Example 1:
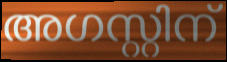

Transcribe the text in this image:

അഗസ്റ്റിന്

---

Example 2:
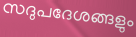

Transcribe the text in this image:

സദുപദേശങ്ങളും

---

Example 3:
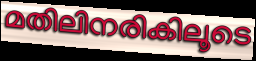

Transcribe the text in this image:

മതിലിനരികിലൂടെ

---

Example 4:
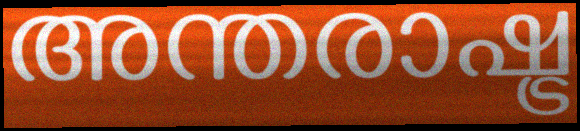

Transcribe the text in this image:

അന്തരാഷ്ട്ര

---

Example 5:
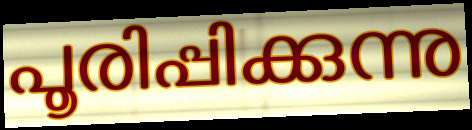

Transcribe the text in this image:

പൂരിപ്പിക്കുന്നു